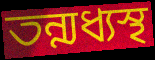
তন্মধ্যস্থ